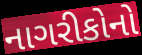
નાગરીકોનો